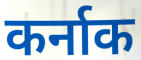
कर्नाक